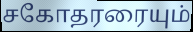
சகோதரரையும்